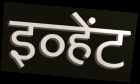
इव्हेंट